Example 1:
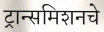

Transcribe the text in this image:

ट्रान्समिशनचे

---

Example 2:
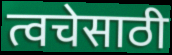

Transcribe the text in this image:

त्वचेसाठी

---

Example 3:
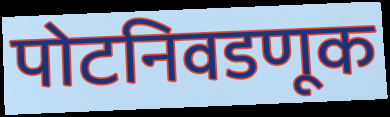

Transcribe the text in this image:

पोटनिवडणूक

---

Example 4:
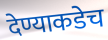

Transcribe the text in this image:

देण्याकडेच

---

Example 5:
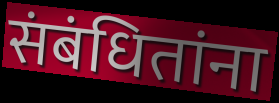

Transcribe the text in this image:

संबंधितांना